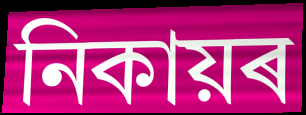
নিকায়ৰ